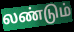
லண்டும்